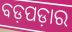
ବଡ଼ପଡ଼ାର